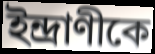
ইন্দ্রাণীকে